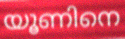
യൂണിനെ